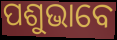
ପଶୁଭାବେ